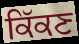
ਕਿੱਕਣ